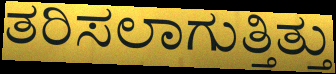
ತರಿಸಲಾಗುತ್ತಿತ್ತು